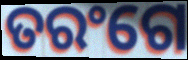
ତରଂଗେ